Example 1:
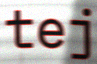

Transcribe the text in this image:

tej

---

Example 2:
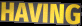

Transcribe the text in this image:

HAVING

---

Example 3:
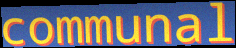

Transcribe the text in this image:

communal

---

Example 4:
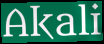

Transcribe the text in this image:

Akali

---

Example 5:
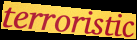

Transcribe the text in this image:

terroristic